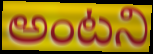
అంటని